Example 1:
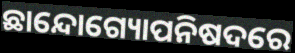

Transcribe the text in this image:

ଛାନ୍ଦୋଗ୍ୟୋପନିଷଦରେ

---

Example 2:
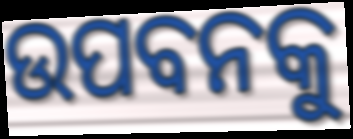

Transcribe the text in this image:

ଉପବନକୁ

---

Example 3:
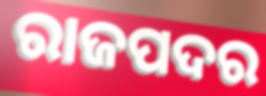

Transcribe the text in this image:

ରାଜପଦର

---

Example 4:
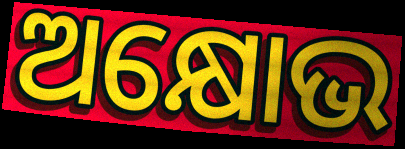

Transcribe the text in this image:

ଅକ୍ଷୋଭ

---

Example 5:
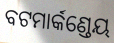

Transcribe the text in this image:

ବଟମାର୍କଣ୍ଡେୟ